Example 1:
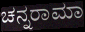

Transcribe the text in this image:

ಚನ್ನರಾಮಾ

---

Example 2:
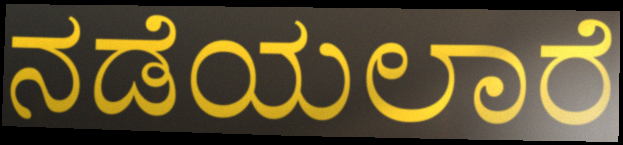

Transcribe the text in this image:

ನಡೆಯಲಾರೆ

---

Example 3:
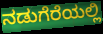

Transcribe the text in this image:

ನಡುಗೆರೆಯಲ್ಲಿ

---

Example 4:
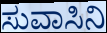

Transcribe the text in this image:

ಸುವಾಸಿನಿ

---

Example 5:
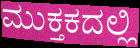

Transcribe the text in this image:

ಮುಕ್ತಕದಲ್ಲಿ